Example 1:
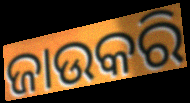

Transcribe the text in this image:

ଜାଉକରି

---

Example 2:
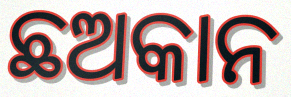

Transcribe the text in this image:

ଛଅକାନ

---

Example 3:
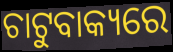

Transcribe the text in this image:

ଚାଟୁବାକ୍ୟରେ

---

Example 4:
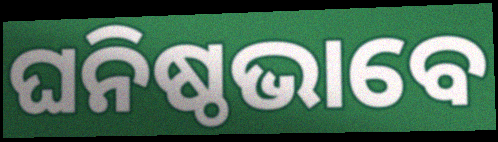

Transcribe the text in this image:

ଘନିଷ୍ଠଭାବେ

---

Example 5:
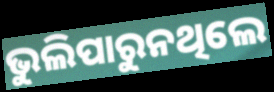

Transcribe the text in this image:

ଭୁଲିପାରୁନଥିଲେ